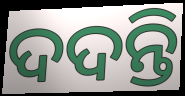
ଦଦନ୍ତି